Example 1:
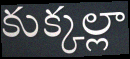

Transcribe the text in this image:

కుక్కల్లా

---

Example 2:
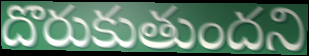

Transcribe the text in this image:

దొరుకుతుందని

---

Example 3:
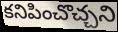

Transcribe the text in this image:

కనిపించొచ్చని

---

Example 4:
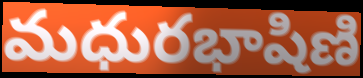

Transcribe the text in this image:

మధురభాషిణి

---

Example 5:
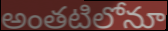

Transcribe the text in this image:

అంతటిలోనూ